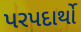
પરપદાર્થો